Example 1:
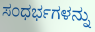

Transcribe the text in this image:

ಸಂಧರ್ಭಗಳನ್ನು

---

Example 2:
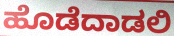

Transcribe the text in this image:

ಹೊಡೆದಾಡಲಿ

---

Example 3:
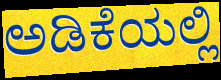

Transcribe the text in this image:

ಅಡಿಕೆಯಲ್ಲಿ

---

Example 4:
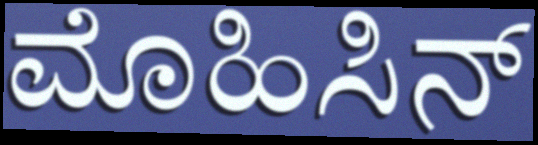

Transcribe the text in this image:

ಮೊಹಿಸಿನ್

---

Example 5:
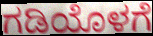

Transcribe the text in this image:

ಗಡಿಯೊಳಗೆ